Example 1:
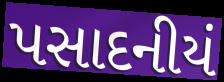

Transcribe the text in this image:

પસાદનીયં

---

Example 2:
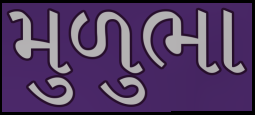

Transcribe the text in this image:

મુળુભા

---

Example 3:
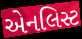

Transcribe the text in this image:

એનલિસ્ટ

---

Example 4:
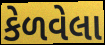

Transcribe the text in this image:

કેળવેલા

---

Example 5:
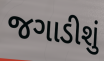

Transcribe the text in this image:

જગાડીશું